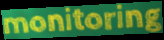
monitoring